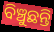
ବିଞ୍ଚୁଛନ୍ତି